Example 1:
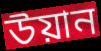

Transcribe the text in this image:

উয়ান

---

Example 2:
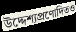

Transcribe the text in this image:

উদ্দেশ্যপ্রণোদিতও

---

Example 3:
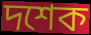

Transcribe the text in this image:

দশেক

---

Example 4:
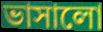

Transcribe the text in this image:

ভাসালো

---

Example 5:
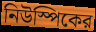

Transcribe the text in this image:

নিউস্পিকের